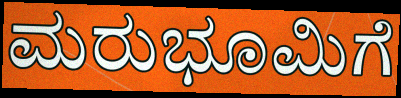
ಮರುಭೂಮಿಗೆ